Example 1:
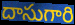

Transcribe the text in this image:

దాసుగారి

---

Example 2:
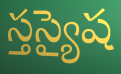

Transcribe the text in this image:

స్తస్యైష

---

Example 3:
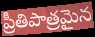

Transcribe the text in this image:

ప్రీతిపాత్రమైన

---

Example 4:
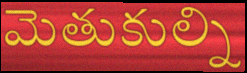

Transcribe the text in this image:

మెతుకుల్ని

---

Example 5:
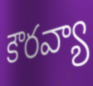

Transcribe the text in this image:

కౌరవ్యా